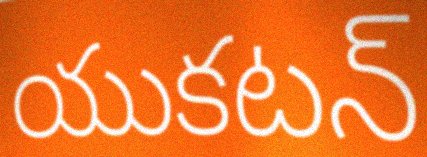
యుకటన్